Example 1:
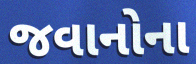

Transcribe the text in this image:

જવાનોના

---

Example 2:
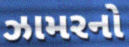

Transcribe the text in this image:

ઝામરનો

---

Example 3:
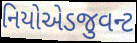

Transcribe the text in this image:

નિયોએડજુવન્ટ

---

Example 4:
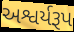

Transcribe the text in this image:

અશ્વર્યરૂપ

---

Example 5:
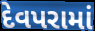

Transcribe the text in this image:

દેવપરામાં